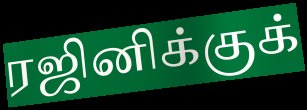
ரஜினிக்குக்